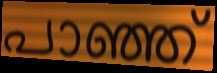
പാഞ്ഞ്